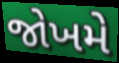
જોખમે